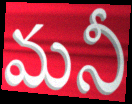
మనీ